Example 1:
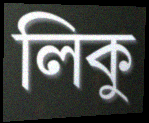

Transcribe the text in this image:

লিকু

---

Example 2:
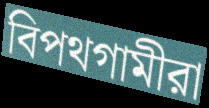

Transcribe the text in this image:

বিপথগামীরা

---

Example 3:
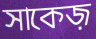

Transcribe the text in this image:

সাকেজ়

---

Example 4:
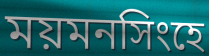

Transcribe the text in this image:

ময়মনসিংহে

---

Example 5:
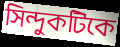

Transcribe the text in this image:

সিন্দুকটিকে